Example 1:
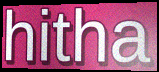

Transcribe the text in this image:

hitha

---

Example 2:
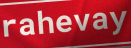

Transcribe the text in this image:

rahevay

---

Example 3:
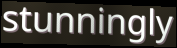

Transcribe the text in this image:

stunningly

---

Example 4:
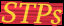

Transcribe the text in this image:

STPs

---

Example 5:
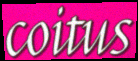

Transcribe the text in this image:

coitus